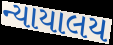
ન્યાયાલય